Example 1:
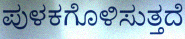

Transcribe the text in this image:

ಪುಳಕಗೊಳಿಸುತ್ತದೆ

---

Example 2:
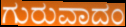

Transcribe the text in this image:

ಗುರುವಾದಂ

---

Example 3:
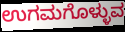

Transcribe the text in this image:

ಉಗಮಗೊಳ್ಳುವ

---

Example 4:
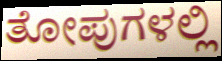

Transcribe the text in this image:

ತೋಪುಗಳಲ್ಲಿ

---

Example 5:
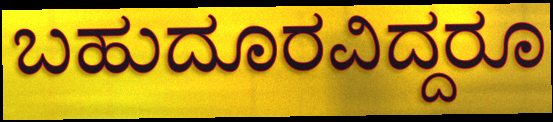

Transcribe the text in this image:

ಬಹುದೂರವಿದ್ದರೂ